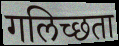
गलिच्छता